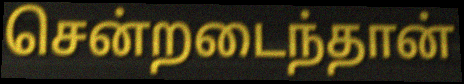
சென்றடைந்தான்